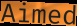
Aimed